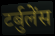
टर्बुलेंस